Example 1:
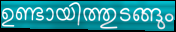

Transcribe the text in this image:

ഉണ്ടായിത്തുടങ്ങും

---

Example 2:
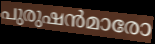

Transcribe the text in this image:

പുരുഷൻമാരോ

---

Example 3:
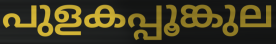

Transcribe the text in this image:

പുളകപ്പൂങ്കുല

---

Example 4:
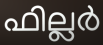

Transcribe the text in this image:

ഫില്ലർ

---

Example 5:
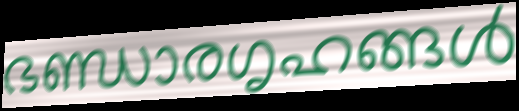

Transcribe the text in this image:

ഭണ്ഡാരഗൃഹങ്ങൾ